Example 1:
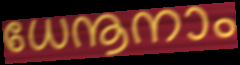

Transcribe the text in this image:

ധേനൂനാം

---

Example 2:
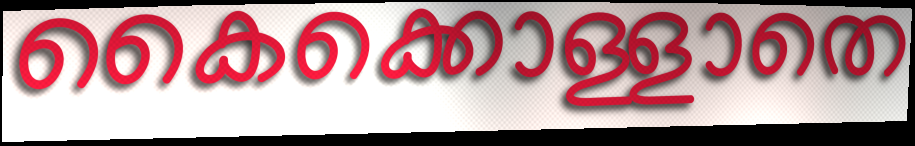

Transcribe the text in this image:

കൈക്കൊള്ളാതെ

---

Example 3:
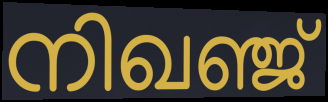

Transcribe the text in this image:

നിഖഞ്ജ്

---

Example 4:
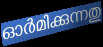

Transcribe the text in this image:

ഓർമിക്കുന്നതു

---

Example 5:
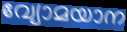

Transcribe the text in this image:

വ്യോമയാന